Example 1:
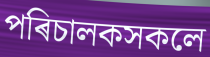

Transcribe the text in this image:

পৰিচালকসকলে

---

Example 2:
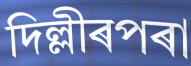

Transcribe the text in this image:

দিল্লীৰপৰা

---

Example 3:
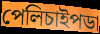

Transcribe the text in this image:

পেলিচাইপডা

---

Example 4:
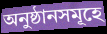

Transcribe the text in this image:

অনুষ্ঠানসমূহে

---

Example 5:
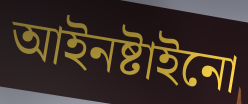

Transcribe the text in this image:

আইনষ্টাইনো